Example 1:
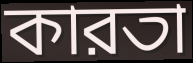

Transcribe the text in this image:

কারতা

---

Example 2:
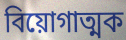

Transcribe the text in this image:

বিয়োগাত্মক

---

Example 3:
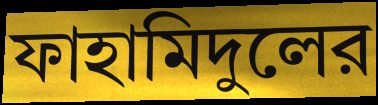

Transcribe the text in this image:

ফাহামিদুলের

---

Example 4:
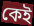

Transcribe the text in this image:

কেই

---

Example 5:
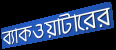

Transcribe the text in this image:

ব্যাকওয়াটারের